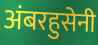
अंबरहुसेनी